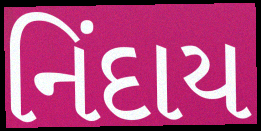
નિંદાય